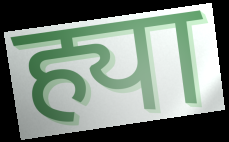
ह्या